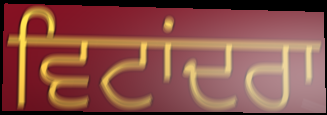
ਵਿਟਾਂਦਰਾ